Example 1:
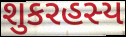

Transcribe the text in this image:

શુકરહસ્ય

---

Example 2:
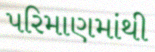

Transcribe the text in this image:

પરિમાણમાંથી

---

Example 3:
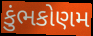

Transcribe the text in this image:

કુંભકોણમ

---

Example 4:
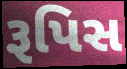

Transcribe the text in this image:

રૂપિસ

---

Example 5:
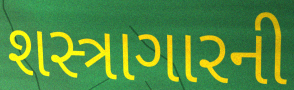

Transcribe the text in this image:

શસ્ત્રાગારની